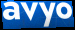
avyo